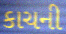
કાચની